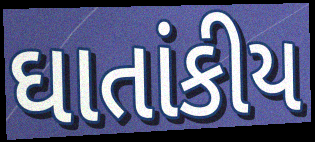
ઘાતાંકીય